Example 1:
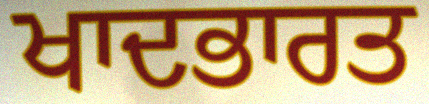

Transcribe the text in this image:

ਖਾਦਭਾਰਤ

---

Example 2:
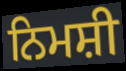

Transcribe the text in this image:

ਨਿਮਸ਼ੀ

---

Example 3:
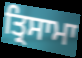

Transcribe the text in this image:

ਤ੍ਰਿਸਾਮਾ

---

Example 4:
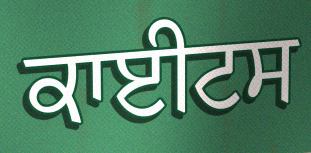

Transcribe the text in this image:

ਕਾਈਟਸ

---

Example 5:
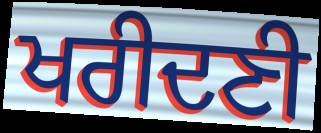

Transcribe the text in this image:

ਖਰੀਦਣੀ